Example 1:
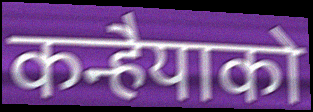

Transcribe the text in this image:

कन्हैयाको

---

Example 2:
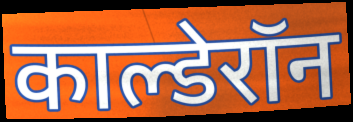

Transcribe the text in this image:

काल्डेरॉन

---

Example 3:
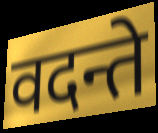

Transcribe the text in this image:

वदन्ते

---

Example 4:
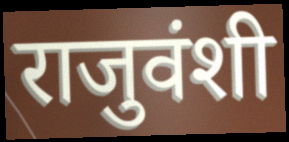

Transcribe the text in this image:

राजुवंशी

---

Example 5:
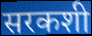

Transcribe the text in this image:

सरकशी